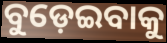
ବୁଡ଼େଇବାକୁ